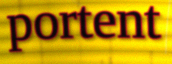
portent